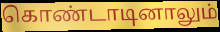
கொண்டாடினாலும்